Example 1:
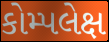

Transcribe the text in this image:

કોમ્પલેક્ષ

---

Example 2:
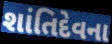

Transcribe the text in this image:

શાંતિદેવના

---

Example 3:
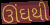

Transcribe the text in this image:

ઊંઘથી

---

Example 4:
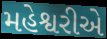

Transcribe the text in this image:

મહેશ્વરીએ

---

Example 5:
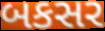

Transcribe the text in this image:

બકસર